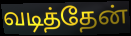
வடித்தேன்